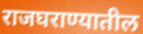
राजघराण्यातील